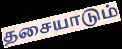
தசையாடும்